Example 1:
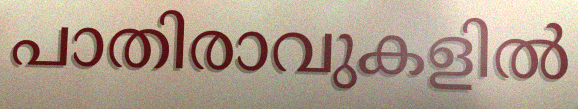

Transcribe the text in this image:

പാതിരാവുകളിൽ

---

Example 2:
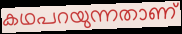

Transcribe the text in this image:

കഥപറയുന്നതാണ്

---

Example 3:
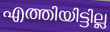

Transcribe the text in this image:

എത്തിയിട്ടില്ല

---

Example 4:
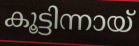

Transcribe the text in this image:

കൂട്ടിന്നായ്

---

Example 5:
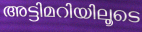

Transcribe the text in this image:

അട്ടിമറിയിലൂടെ